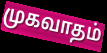
முகவாதம்